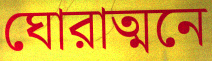
ঘোরাত্মনে